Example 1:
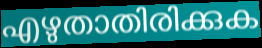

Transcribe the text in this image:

എഴുതാതിരിക്കുക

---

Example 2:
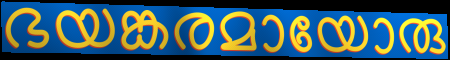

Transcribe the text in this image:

ഭയങ്കരമായോരു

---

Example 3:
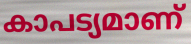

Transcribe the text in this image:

കാപട്യമാണ്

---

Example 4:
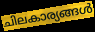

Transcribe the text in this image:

ചിലകാര്യങ്ങൾ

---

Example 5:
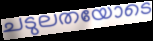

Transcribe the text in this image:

ചടുലതയോടെ